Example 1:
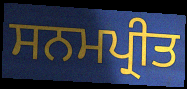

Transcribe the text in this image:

ਸਨਮਪ੍ਰੀਤ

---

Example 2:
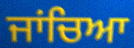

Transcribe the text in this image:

ਜਾਂਚਿਆ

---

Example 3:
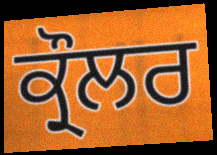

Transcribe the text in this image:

ਕ੍ਰੌਲਰ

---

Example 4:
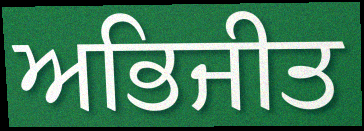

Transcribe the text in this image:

ਅਭਿਜੀਤ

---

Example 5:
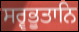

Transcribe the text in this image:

ਸਰ੍ਵਭੂਤਾਨਿ